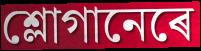
শ্লোগানেৰে